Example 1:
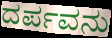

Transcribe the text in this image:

ದರ್ಪವನು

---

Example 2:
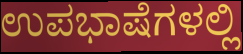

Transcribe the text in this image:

ಉಪಭಾಷೆಗಳಲ್ಲಿ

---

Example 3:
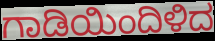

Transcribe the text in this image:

ಗಾಡಿಯಿಂದಿಳಿದ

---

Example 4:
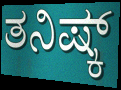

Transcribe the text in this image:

ತನಿಷ್ಕ್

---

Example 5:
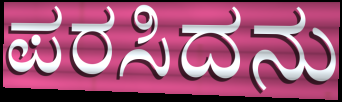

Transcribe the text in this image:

ಪರಸಿದನು